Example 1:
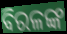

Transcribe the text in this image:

ବିରଳଙ୍କ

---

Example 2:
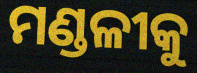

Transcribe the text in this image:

ମଣ୍ଡଳୀକୁ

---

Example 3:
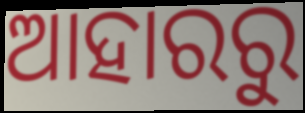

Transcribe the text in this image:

ଆହାରରୁ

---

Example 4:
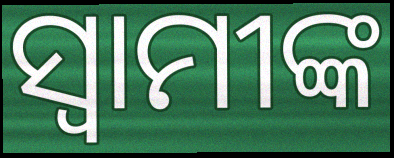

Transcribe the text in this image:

ସ୍ଵାମୀଙ୍କ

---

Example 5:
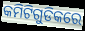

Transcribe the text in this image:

କମିଟିଗୁଡିକରେ